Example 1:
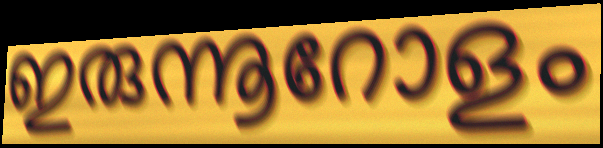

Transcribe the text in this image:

ഇരുന്നൂറോളം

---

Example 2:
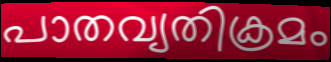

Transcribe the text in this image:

പാതവ്യതിക്രമം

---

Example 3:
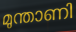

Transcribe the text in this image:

മുന്താണി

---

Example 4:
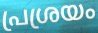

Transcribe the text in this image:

പ്രശ്രയം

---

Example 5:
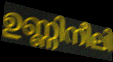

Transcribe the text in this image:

ഉണ്ണിനീലി